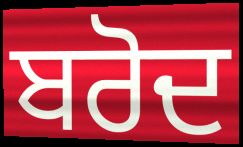
ਬਰੋਦ